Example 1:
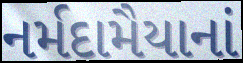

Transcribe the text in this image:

નર્મદામૈયાનાં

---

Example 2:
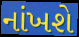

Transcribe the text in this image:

નાંખશે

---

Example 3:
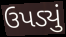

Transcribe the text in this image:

ઉપડ્યું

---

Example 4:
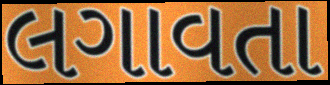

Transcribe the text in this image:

લગાવતા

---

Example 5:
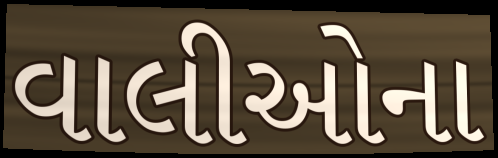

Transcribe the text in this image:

વાલીઓના